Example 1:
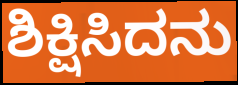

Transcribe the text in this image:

ಶಿಕ್ಷಿಸಿದನು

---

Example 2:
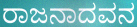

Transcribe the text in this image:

ರಾಜನಾದವನ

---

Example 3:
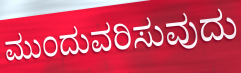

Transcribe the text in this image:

ಮುಂದುವರಿಸುವುದು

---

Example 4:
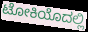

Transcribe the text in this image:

ಟೋಕಿಯೊದಲ್ಲಿ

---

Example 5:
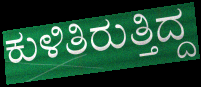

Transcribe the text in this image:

ಕುಳಿತಿರುತ್ತಿದ್ದ